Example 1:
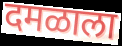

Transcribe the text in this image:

दमळाला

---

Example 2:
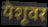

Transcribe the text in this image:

येशूवर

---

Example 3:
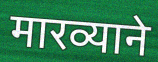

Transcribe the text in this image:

मारव्याने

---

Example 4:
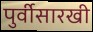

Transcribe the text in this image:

पुर्वीसारखी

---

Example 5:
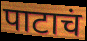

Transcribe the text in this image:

पाटाचं